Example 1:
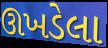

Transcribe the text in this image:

ઊખડેલા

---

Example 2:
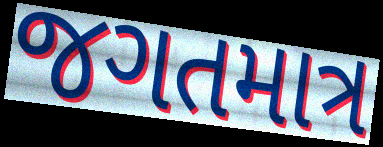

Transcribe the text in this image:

જગતમાત્ર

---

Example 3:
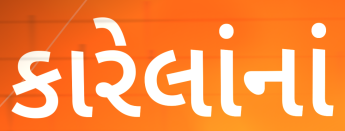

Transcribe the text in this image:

કારેલાંનાં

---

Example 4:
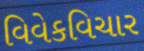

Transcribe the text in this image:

વિવેકવિચાર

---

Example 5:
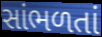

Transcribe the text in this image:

સાંભળતાં